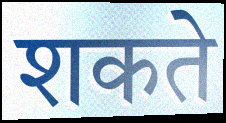
शकते